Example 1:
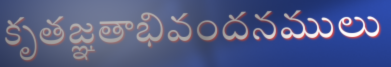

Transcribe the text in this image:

కృతజ్ఞతాభివందనములు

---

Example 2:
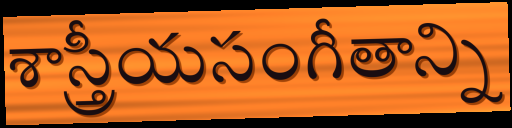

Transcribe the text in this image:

శాస్త్రీయసంగీతాన్ని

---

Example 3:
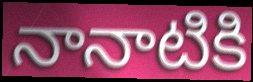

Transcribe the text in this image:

నానాటికి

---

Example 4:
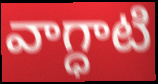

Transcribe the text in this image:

వాగ్ధాటి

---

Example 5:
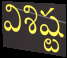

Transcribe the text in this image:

విశిష్ట